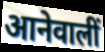
आनेवालीं